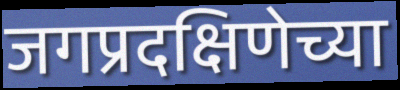
जगप्रदक्षिणेच्या